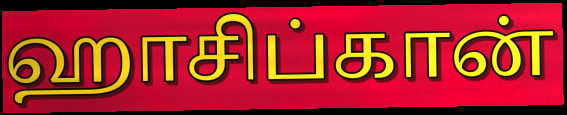
ஹாசிப்கான்